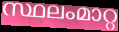
സ്ഥലംമാറ്റ